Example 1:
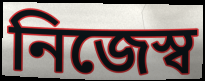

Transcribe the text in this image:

নিজেস্ব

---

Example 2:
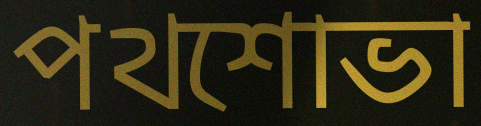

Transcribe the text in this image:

পথশোভা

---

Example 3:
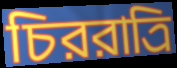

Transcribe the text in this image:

চিররাত্রি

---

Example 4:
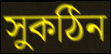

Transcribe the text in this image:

সুকঠিন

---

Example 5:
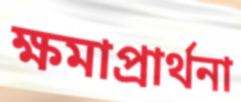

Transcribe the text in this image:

ক্ষমাপ্রার্থনা